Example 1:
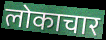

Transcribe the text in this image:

लोकाचार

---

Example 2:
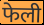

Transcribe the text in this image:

फेली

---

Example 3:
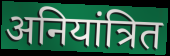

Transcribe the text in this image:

अनियांत्रित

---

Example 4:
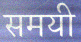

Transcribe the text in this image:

समयी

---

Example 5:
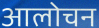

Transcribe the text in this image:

आलोचन